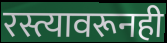
रस्त्यावरूनही